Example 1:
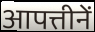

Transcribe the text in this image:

आपत्तीनें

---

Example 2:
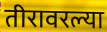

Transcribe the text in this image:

तीरावरल्या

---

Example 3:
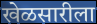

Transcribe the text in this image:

खेळसारीला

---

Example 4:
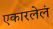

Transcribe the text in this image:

एकारलेलं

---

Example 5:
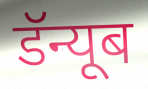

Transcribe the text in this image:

डॅन्यूब